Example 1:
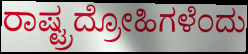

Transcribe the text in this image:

ರಾಷ್ಟ್ರದ್ರೋಹಿಗಳೆಂದು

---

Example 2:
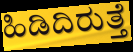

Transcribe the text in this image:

ಹಿಡಿದಿರುತ್ತೆ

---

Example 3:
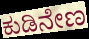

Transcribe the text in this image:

ಕುಡಿನೇಣ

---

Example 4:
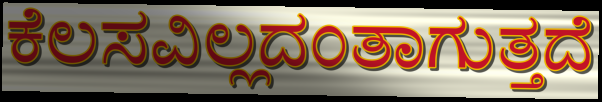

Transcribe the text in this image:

ಕೆಲಸವಿಲ್ಲದಂತಾಗುತ್ತದೆ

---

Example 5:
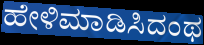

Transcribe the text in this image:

ಹೇಳಿಮಾಡಿಸಿದಂಥ